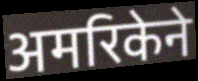
अमरिकेने